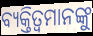
ବ୍ୟକ୍ତିତ୍ବମାନଙ୍କୁ